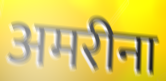
अमरीना